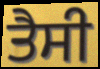
ਤੈਸੀ